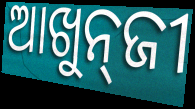
ଆଖୁନ୍‌ଜୀ